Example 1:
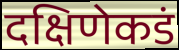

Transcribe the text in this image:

दक्षिणेकडं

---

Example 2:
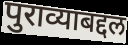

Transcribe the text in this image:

पुराव्याबद्दल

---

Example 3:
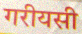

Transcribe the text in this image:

गरीयसी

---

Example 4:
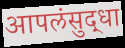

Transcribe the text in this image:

आपलंसुद्धा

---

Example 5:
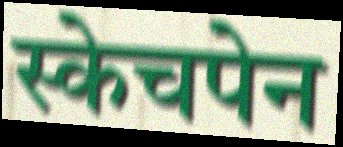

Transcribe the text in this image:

स्केचपेन